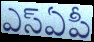
ఎస్ఏపీ